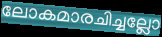
ലോകമാരചിച്ചല്ലോ